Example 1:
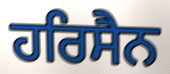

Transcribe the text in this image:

ਹਰਿਸੈਨ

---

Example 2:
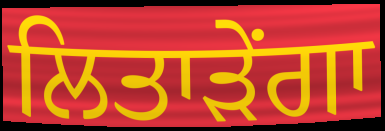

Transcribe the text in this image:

ਲਿਤਾੜੇਂਗਾ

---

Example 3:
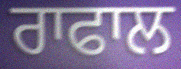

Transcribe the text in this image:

ਰਾਫਾਲ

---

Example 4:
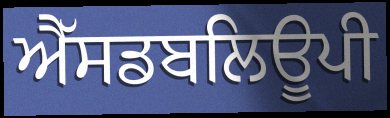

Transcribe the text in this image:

ਐੱਸਡਬਲਿਊਪੀ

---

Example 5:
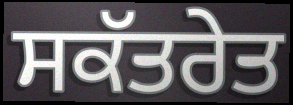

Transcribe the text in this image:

ਸਕੱਤਰੇਤ